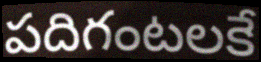
పదిగంటలకే